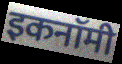
इकनॉमी